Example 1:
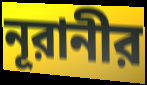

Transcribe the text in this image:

নূরানীর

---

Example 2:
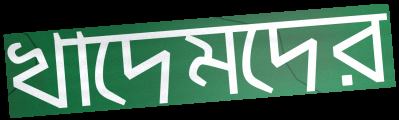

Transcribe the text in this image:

খাদেমদের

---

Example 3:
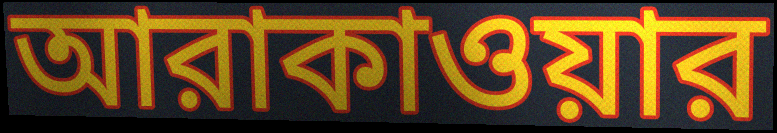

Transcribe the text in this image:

আরাকাওয়ার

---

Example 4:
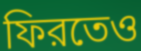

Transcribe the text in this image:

ফিরতেও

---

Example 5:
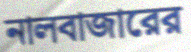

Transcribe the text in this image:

নালবাজারের